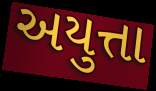
અયુત્તા